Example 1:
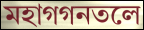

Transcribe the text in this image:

মহাগগনতলে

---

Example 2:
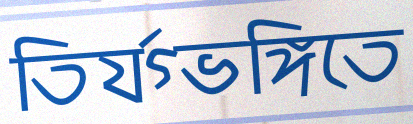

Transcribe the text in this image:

তির্যগ্ভঙ্গিতে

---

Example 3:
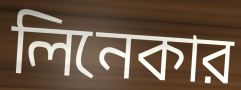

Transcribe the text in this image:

লিনেকার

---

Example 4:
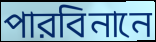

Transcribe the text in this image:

পারবিনানে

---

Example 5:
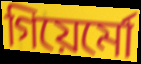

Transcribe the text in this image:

গিয়ের্মো